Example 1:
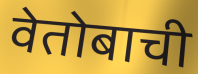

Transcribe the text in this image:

वेतोबाची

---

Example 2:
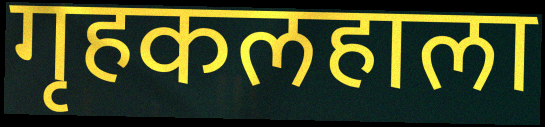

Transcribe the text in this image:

गृहकलहाला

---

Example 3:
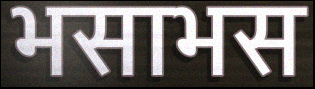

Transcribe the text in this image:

भसाभस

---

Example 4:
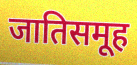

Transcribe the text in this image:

जातिसमूह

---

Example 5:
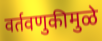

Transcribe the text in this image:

वर्तवणुकीमुळे